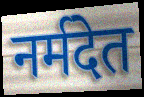
नर्मदेत